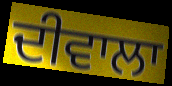
ਦੀਵਾਲਾ